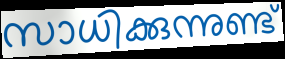
സാധിക്കുന്നുണ്ട്